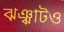
ঝঞ্ঝাটও